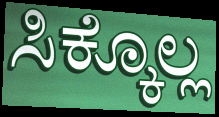
ಸಿಕ್ಕೊಲ್ಲ